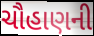
ચૌહાણની